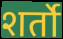
शर्तो